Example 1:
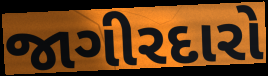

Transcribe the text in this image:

જાગીરદારો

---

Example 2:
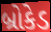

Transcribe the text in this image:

બ્રોકેડ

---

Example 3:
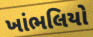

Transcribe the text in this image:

ખાંભલિયો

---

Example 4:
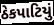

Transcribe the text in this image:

ઠેકપાટિયું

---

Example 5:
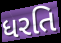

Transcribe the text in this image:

ધરતિ